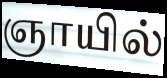
ஞாயில்